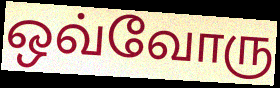
ஒவ்வோரு